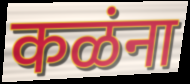
कळंना